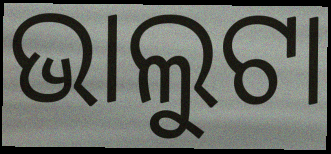
ଭାଲୁଟା